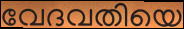
വേദവതിയെ